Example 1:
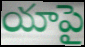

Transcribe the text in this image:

యాపై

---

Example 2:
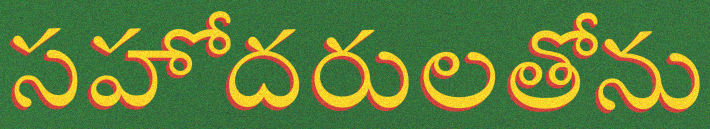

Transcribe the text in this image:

సహోదరులతోను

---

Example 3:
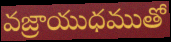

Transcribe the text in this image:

వజ్రాయుధముతో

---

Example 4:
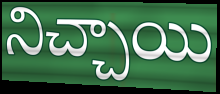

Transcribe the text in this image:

నిచ్చాయి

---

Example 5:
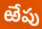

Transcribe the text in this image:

ఱేపు